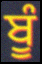
ਬੂੰ